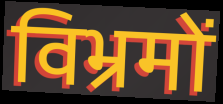
विभ्रमों